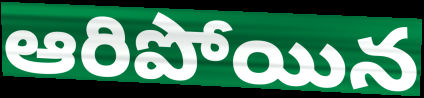
ఆరిపోయిన